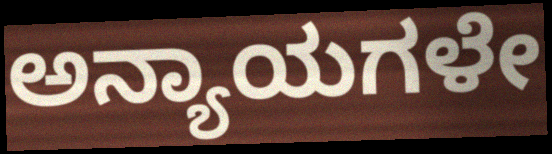
ಅನ್ಯಾಯಗಳೇ